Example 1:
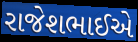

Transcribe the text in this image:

રાજેશભાઈએ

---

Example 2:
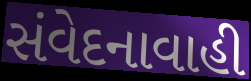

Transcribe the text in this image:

સંવેદનાવાહી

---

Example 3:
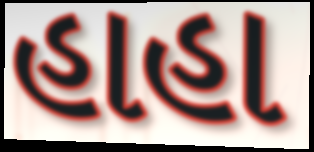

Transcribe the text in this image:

હાહા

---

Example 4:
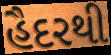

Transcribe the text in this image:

હૈદરથી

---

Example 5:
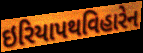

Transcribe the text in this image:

ઇરિયાપથવિહારેન